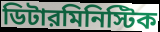
ডিটারমিনিস্টিক